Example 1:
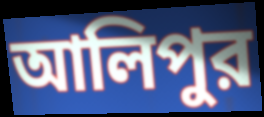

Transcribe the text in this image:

আলিপুর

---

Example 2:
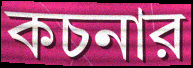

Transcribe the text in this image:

কচনার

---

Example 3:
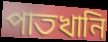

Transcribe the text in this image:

পাতখানি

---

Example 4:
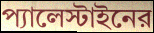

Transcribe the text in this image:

প্যালেস্টাইনের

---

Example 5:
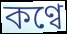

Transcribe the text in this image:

কণ্বে